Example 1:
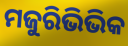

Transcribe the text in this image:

ମଜୁରିଭିଭିକ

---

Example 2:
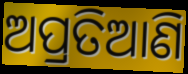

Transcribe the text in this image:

ଅପ୍ରତିଆଣି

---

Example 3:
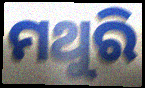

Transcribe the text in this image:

ମଥୁରି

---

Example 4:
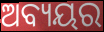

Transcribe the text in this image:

ଅବ୍ୟୟର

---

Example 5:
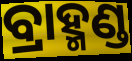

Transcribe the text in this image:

ବ୍ରାହ୍ମଣ୍ଡ